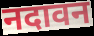
नदावन